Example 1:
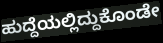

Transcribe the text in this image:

ಹುದ್ದೆಯಲ್ಲಿದ್ದುಕೊಂಡೇ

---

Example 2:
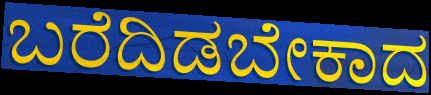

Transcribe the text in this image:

ಬರೆದಿಡಬೇಕಾದ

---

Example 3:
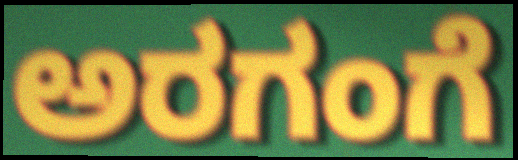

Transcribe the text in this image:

ಅರಗಂಗೆ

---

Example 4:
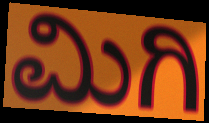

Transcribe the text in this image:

ಮಿಗಿ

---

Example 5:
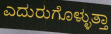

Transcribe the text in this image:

ಎದುರುಗೊಳ್ಳುತ್ತಾ